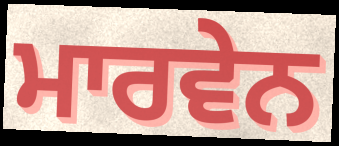
ਮਾਰਵੇਨ